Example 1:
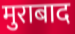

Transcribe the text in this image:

मुराबाद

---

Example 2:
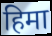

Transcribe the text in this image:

हिमा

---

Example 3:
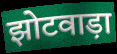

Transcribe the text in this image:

झोटवाड़ा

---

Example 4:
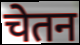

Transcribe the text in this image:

चेतन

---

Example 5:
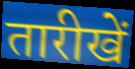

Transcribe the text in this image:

तारीखें